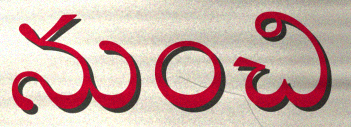
నుంచి